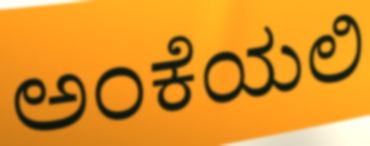
ಅಂಕೆಯಲಿ